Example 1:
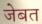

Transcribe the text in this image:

जेबत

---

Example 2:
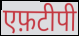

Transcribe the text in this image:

एफ़टीपी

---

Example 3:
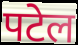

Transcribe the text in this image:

पटेल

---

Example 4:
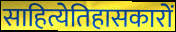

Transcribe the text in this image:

साहित्येतिहासकारों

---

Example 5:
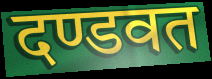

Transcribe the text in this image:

दण्‍डवत